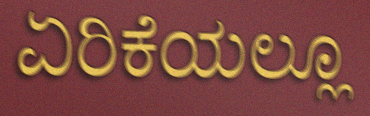
ಏರಿಕೆಯಲ್ಲೂ